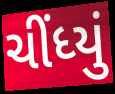
ચીંધ્યું